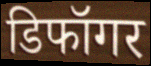
डिफॉगर